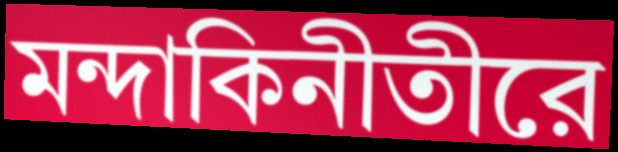
মন্দাকিনীতীরে